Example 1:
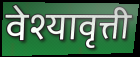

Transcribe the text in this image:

वेश्यावृत्ती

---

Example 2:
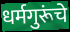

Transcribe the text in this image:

धर्मगुरूंचे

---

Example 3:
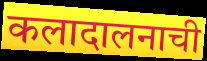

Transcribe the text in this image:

कलादालनाची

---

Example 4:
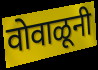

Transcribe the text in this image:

वोवाळूनी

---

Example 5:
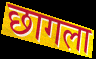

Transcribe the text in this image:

छागला